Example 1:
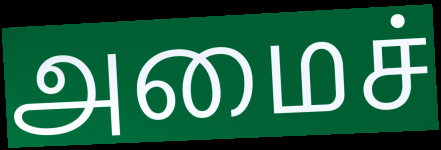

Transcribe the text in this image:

அமைச்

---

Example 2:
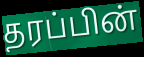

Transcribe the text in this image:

தரப்பின்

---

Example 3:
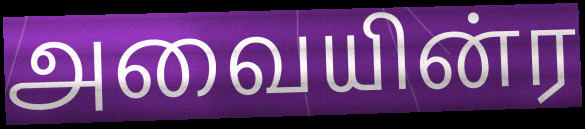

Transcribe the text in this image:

அவையின்ர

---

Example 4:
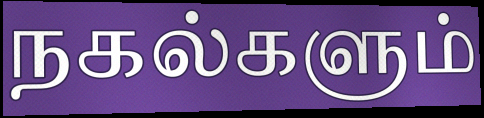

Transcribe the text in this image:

நகல்களும்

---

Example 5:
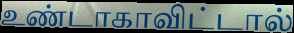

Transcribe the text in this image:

உண்டாகாவிட்டால்